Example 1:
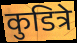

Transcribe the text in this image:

कुडित्रे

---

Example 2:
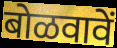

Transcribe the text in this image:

बोळवावें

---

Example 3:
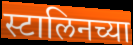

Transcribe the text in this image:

स्टालिनच्या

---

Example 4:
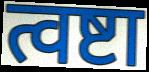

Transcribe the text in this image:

त्वष्टा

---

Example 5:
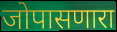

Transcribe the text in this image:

जोपासणारा